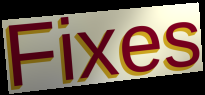
Fixes